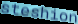
steshion